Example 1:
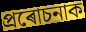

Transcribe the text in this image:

প্ৰৰোচনাক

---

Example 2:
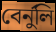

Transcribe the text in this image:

বেৰ্নুলি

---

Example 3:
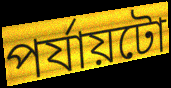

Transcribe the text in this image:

পৰ্যায়টো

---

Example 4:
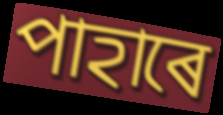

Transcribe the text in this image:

পাহাৰে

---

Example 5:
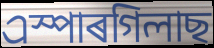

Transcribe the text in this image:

এস্পাৰগিলাছ